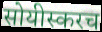
सोयीस्करच